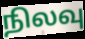
நிலவு